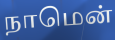
நாமென்